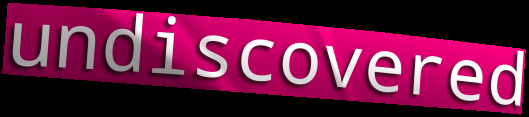
undiscovered